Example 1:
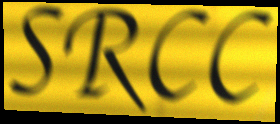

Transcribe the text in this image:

SRCC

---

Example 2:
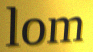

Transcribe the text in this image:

lom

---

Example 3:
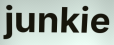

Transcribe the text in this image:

junkie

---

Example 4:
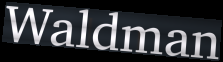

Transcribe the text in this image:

Waldman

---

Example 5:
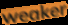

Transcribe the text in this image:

weaker